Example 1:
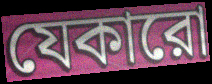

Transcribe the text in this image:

যেকারো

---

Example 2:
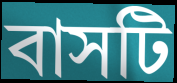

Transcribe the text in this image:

বাসটি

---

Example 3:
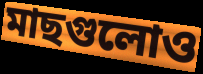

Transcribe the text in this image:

মাছগুলোও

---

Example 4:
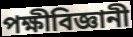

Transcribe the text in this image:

পক্ষীবিজ্ঞানী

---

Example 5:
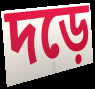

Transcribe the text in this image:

দড়ে